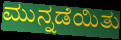
ಮುನ್ನಡೆಯಿತು